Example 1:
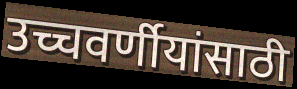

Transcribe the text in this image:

उच्चवर्णीयांसाठी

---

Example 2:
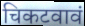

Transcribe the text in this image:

चिकटवावं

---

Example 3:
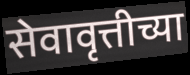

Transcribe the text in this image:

सेवावृत्तीच्या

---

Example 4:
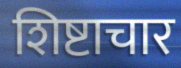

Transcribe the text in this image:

शिष्टाचार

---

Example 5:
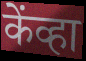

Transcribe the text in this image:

केंव्हा